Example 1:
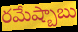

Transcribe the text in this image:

రమేష్బాబు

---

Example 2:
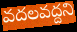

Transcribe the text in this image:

వదలవద్దని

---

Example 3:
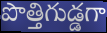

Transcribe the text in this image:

పొత్తిగుడ్డగా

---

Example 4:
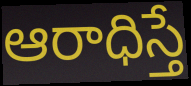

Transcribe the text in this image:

ఆరాధిస్తే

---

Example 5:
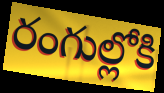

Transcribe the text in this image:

రంగుల్లోకి